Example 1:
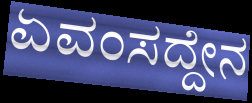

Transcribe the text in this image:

ಏವಂಸದ್ದೇನ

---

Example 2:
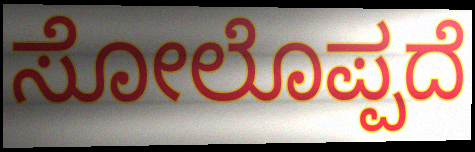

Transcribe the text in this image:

ಸೋಲೊಪ್ಪದೆ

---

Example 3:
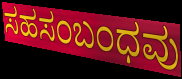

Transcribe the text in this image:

ಸಹಸಂಬಂಧವು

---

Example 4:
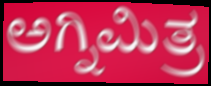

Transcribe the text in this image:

ಅಗ್ನಿಮಿತ್ರ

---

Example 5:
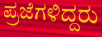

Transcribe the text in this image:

ಪ್ರಜೆಗಳಿದ್ದರು